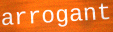
arrogant